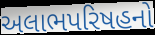
અલાભપરિષહનો